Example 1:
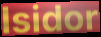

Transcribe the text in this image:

Isidor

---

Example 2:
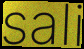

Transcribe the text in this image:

sali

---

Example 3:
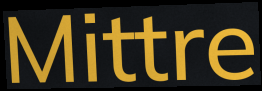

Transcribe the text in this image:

Mittre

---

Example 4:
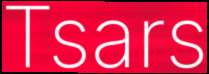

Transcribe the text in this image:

Tsars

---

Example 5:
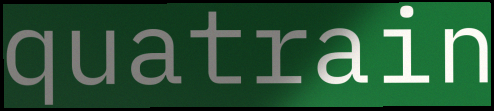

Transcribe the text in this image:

quatrain